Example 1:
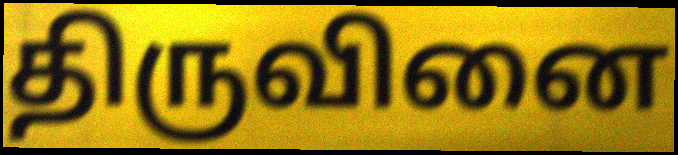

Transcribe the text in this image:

திருவினை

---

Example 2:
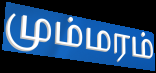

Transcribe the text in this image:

மும்மரம்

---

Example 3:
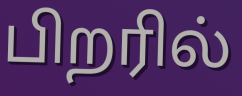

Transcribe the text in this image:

பிறரில்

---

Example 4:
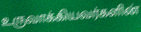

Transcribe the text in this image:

உருவாக்கியவர்களின்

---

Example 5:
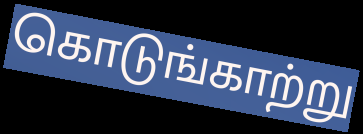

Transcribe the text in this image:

கொடுங்காற்று